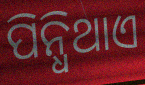
ପିନ୍ଧିଥାଏ